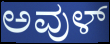
ಅವುಳ್